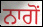
ਨਾਗੋਂ